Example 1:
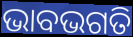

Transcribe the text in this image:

ଭାବଭଗତି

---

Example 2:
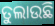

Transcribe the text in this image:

ତୁଲାଉଛି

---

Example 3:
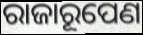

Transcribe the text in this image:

ରାଜାରୂପେଣ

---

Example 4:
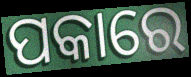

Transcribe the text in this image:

ପକାରେ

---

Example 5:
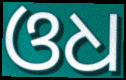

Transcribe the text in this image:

ଓଧ